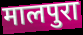
मालपुरा